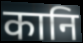
कानि